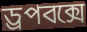
ড্রপবক্সে